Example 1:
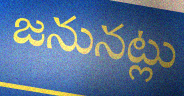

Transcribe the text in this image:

జనునట్లు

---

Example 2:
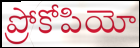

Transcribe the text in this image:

ప్రోకోపియో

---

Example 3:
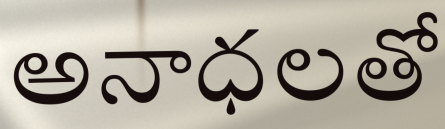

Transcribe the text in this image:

అనాధలతో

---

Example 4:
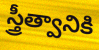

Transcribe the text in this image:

స్త్రీత్వానికి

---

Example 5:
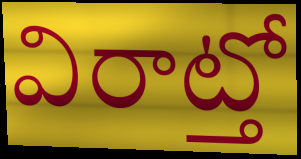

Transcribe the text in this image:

విరాట్తో